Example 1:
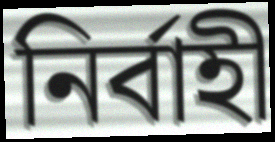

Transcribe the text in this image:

নির্বাহী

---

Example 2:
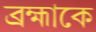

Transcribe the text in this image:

ব্রহ্মাকে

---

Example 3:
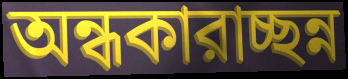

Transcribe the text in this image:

অন্ধকারাচ্ছন্ন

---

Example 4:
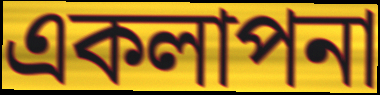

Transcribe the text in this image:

একলাপনা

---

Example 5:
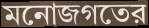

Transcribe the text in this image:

মনোজগতের